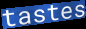
tastes